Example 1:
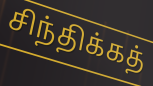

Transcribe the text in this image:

சிந்திக்கத்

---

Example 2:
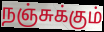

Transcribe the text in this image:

நஞ்சுக்கும்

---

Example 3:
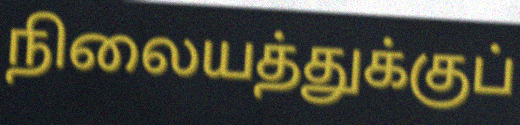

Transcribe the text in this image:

நிலையத்துக்குப்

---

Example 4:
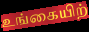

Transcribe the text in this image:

உங்கையிற்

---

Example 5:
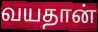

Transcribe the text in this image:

வயதான்